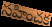
సహించక